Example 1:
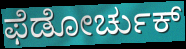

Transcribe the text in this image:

ಫೆಡೋರ್ಚುಕ್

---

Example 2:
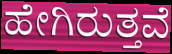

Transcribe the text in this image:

ಹೇಗಿರುತ್ತವೆ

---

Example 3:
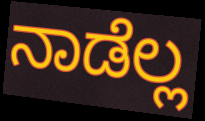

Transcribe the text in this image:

ನಾಡೆಲ್ಲ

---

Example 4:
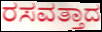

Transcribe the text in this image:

ರಸವತ್ತಾದ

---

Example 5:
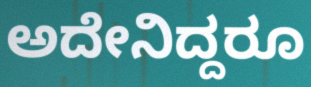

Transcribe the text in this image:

ಅದೇನಿದ್ದರೂ